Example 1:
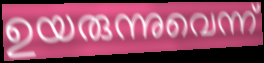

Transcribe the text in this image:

ഉയരുന്നുവെന്ന്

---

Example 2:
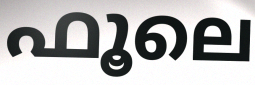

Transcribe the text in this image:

ഫൂലെ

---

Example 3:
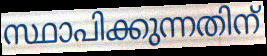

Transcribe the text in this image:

സ്ഥാപിക്കുന്നതിന്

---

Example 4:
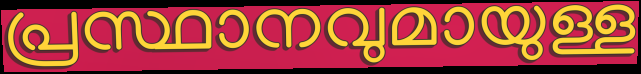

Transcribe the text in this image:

പ്രസ്ഥാനവുമായുള്ള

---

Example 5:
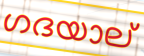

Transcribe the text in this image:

ഗദയാല്